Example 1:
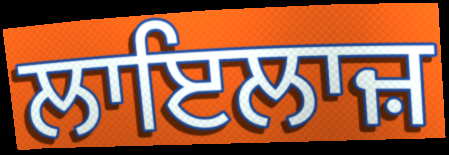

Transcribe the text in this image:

ਲਾਇਲਾਜ਼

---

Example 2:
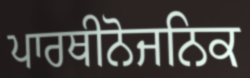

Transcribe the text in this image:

ਪਾਰਥੀਨੋਜਨਿਕ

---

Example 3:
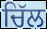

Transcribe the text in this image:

ਚਿੱਲ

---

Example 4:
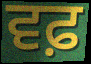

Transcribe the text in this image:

ਵਫ਼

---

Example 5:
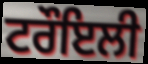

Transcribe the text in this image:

ਟਰੌਇਲੀ